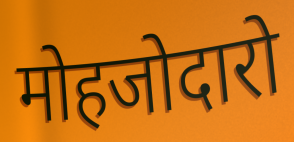
मोहजोदारो